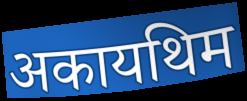
अकायथिम